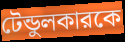
টেন্ডুলকারকে